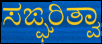
ಸಙ್ಘರಿತ್ವಾ